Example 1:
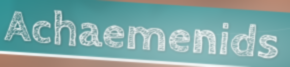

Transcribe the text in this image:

Achaemenids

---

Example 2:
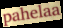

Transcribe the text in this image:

pahelaa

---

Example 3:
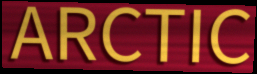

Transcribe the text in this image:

ARCTIC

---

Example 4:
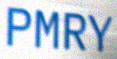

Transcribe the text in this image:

PMRY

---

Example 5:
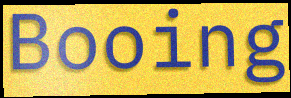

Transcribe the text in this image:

Booing